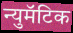
न्युमॅटिक